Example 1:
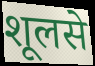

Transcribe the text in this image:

शूलसे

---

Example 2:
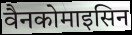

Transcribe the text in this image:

वैनकोमाइसिन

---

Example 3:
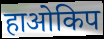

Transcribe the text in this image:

हाओकिप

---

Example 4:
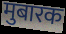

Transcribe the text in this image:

मुबारक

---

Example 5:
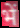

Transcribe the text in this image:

भें